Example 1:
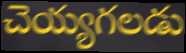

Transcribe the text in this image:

చెయ్యగలడు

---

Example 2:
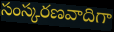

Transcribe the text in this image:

సంస్కరణవాదిగా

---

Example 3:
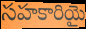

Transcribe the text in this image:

సహకారియై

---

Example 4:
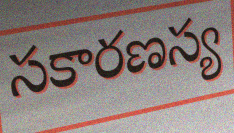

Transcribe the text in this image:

సకారణస్య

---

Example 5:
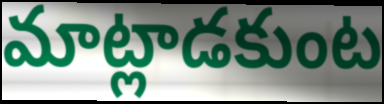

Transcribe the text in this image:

మాట్లాడకుంట